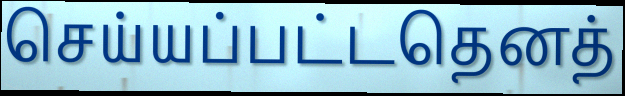
செய்யப்பட்டதெனத்